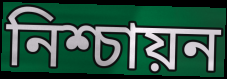
নিশ্চায়ন